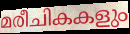
മരീചികകളും